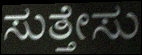
ಸುತ್ತೇಸು